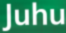
Juhu